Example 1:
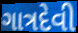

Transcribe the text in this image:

ગાત્રદેવી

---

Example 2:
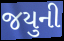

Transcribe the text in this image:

જયુની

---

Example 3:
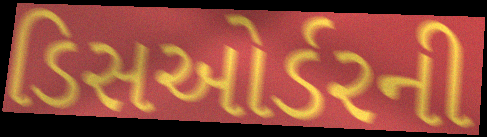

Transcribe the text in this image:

ડિસઓર્ડરની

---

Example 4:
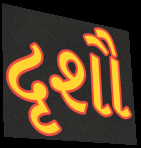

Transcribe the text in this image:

દૃશૌ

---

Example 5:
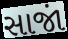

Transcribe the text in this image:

સાજાં